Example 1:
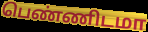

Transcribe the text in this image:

பெண்ணிடமா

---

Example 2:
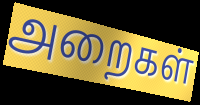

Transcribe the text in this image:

அறைகள்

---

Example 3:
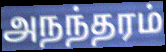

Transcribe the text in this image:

அநந்தரம்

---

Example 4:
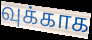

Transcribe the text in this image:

வுக்காக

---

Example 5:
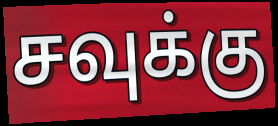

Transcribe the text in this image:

சவுக்கு